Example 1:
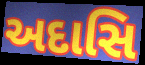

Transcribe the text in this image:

અદાસિ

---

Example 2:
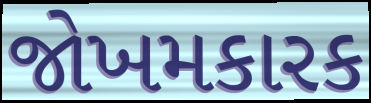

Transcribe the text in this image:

જોખમકારક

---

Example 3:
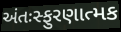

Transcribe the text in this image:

અંતઃસ્ફુરણાત્મક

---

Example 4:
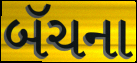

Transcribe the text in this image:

બૅચના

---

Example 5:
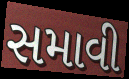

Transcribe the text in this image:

સમાવી